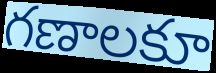
గణాలకూ